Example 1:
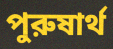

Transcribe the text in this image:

পুরুষার্থ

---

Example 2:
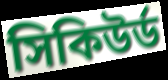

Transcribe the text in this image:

সিকিউর্ড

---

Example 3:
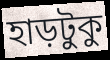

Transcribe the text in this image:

হাড়টুকু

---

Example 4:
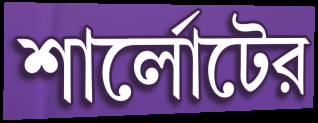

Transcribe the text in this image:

শার্লোটের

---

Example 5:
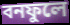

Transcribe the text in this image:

বনফুলে